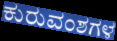
ಕುರುವಂಶಗಳ